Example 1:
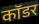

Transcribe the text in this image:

कॉडर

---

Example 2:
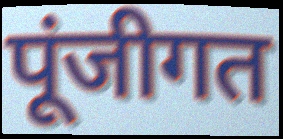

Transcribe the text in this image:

पूंजीगत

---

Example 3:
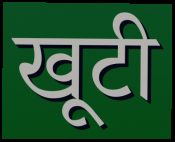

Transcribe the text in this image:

खूटी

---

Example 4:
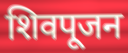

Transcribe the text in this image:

शिवपूजन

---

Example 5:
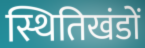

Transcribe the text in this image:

स्थितिखंडों